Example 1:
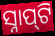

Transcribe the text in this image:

ସ୍ନାପ୍‍ଟି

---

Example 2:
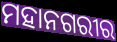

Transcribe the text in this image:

ମହାନଗରୀର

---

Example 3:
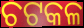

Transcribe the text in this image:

ଚଟକଳ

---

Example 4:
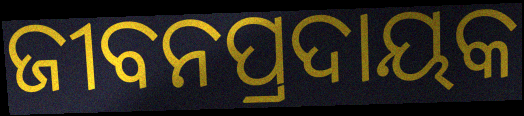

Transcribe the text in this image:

ଜୀବନପ୍ରଦାୟକ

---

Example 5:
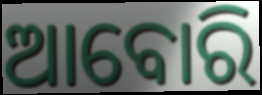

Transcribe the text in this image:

ଆବୋରି